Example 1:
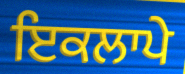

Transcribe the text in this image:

ਇਕਲਾਪੇ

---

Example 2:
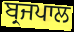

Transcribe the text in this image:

ਬ੍ਰਜਪਾਲ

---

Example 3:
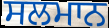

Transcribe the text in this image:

ਸਲਮਾਨ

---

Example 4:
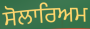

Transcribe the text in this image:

ਸੋਲਾਰਿਅਮ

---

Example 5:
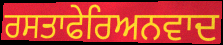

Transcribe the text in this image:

ਰਸਤਾਫੇਰਿਅਨਵਾਦ